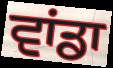
ਵਾਂਡਾ